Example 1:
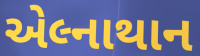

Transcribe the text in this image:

એલ્નાથાન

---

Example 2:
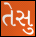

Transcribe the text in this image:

તેસુ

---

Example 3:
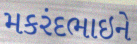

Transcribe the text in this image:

મકરંદભાઇને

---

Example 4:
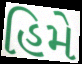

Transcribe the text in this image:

હિમે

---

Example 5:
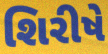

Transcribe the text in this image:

શિરીષે